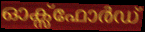
ഓക്സ്ഫോർഡ്